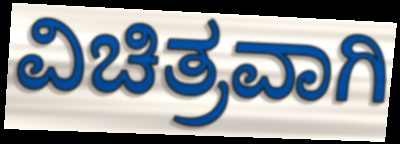
ವಿಚಿತ್ರವಾಗಿ